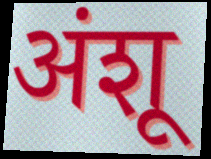
अंशू